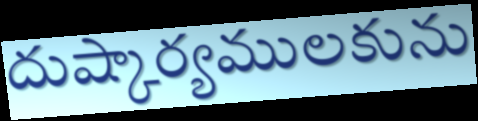
దుష్కార్యములకును